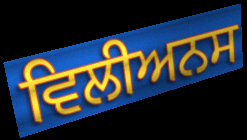
ਵਿਲੀਅਨਸ